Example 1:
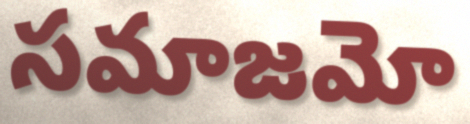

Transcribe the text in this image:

సమాజమో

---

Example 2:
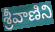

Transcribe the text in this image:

శ్రీవాణిని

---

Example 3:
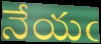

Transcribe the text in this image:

నేయఁ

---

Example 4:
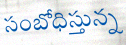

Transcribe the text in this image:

సంబోధిస్తున్న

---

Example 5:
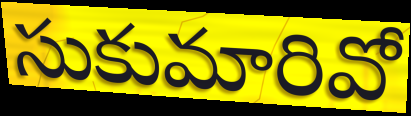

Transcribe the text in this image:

సుకుమారివో